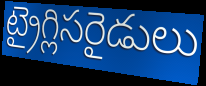
ట్రైగ్లిసరైడులు